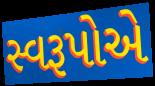
સ્વરૂપોએ